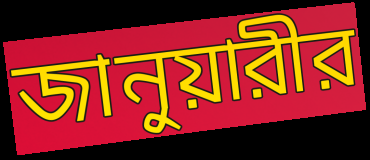
জানুয়ারীর